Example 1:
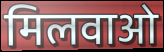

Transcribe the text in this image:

मिलवाओ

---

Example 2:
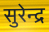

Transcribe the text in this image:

सुरेन्द्र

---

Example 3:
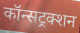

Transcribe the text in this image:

कॉन्सट्रक्शन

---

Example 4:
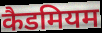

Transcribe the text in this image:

कैडमियम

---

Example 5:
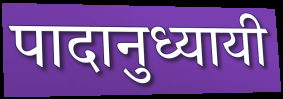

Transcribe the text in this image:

पादानुध्यायी